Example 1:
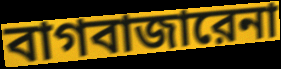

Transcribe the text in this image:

বাগবাজারেনা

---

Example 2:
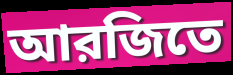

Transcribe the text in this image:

আরজিতে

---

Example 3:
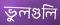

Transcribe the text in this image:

ভুলগুলি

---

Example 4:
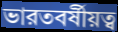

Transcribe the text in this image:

ভারতবর্ষীয়ত্ব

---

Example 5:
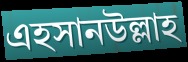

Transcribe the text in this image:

এহসানউল্লাহ